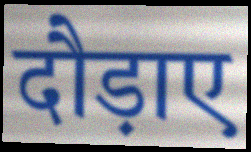
दौड़ाए